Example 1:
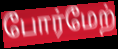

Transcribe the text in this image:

போர்மேற்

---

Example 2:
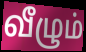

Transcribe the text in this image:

வீழும்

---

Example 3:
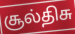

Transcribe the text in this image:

சூல்திசு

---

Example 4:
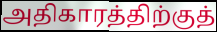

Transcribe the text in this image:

அதிகாரத்திற்குத்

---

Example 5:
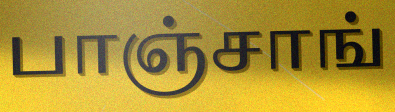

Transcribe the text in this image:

பாஞ்சாங்